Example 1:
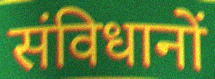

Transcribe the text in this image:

संविधानों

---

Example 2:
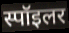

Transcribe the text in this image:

स्पॉइलर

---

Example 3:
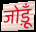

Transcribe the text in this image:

जोड़ूँ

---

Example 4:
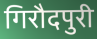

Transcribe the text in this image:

गिरौदपुरी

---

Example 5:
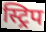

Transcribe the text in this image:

स्ट्रिप